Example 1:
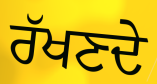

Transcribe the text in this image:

ਰੱਖਣਦੇ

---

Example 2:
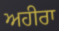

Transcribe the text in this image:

ਅਹੀਰਾ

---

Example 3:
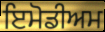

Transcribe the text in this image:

ਇਮੋਡੀਅਮ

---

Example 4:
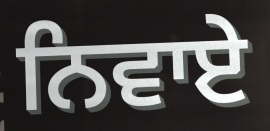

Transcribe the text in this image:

ਨਿਵਾਏ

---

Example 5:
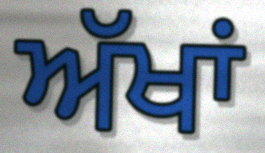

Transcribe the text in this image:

ਅੱਖਾਂ